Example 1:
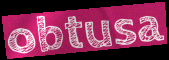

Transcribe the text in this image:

obtusa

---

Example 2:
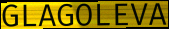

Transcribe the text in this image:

GLAGOLEVA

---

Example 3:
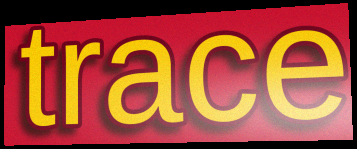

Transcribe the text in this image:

trace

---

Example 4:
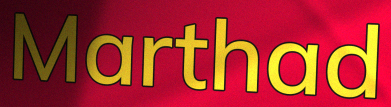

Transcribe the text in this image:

Marthad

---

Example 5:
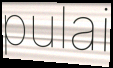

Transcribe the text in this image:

pulai